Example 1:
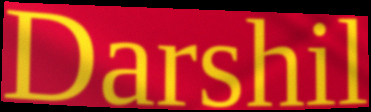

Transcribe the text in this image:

Darshil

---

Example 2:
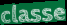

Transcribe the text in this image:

classe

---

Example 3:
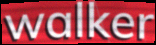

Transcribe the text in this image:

walker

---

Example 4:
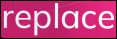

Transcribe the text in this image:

replace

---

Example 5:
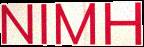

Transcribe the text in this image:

NIMH